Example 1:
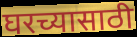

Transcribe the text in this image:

घरच्यासाठी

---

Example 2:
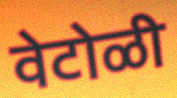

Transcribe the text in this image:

वेटोळी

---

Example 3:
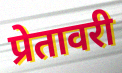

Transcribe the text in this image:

प्रेतावरी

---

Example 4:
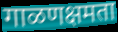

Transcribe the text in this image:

गाळणक्षमता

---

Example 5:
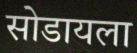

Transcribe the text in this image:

सोडायला